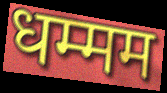
धम्मम